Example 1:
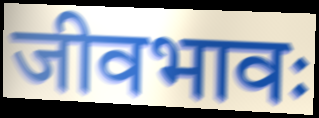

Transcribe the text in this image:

जीवभावः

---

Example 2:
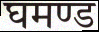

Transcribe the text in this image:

घमण्ड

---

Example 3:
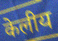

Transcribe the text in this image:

केलीय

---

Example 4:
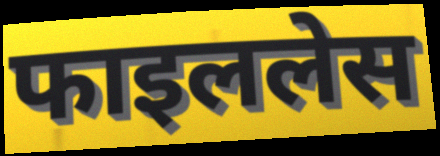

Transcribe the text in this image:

फाइललेस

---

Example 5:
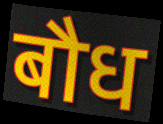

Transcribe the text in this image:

बौध